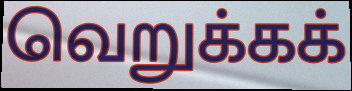
வெறுக்கக்